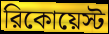
রিকোয়েস্ট